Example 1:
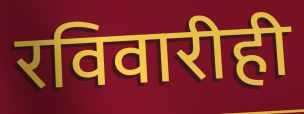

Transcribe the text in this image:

रविवारीही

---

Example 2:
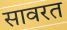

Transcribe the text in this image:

सावरत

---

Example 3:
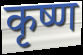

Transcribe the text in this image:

कृष्ण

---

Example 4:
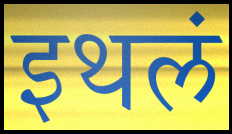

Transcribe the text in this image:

इथलं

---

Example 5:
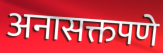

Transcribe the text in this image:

अनासक्तपणे